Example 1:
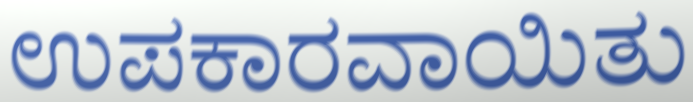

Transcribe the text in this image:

ಉಪಕಾರವಾಯಿತು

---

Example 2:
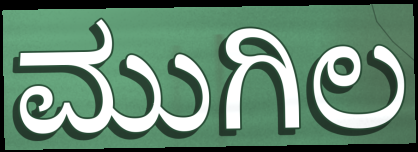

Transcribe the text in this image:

ಮುಗಿಲ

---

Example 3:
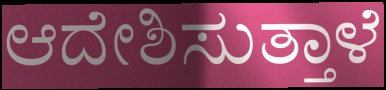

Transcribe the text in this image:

ಆದೇಶಿಸುತ್ತಾಳೆ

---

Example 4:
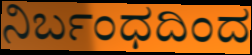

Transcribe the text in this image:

ನಿರ್ಬಂಧದಿಂದ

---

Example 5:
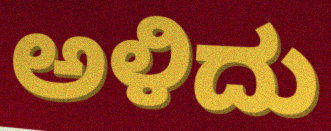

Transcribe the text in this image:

ಅಳಿದು